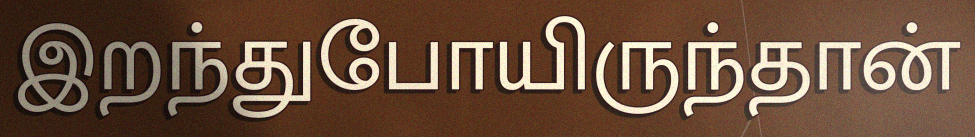
இறந்துபோயிருந்தான்